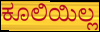
ಕೂಲಿಯಿಲ್ಲ